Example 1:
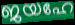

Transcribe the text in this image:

ജയഹേ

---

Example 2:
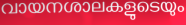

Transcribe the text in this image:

വായനശാലകളുടെയും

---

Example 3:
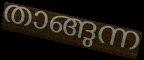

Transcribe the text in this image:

താങ്ങുന്ന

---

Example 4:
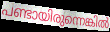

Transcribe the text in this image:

പണ്ടായിരുന്നെങ്കിൽ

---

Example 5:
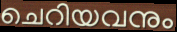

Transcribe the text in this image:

ചെറിയവനും